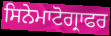
ਸਿਨੇਮਾਟੋਗ੍ਰਾਫਰ